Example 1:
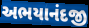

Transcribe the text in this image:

અભયાનંદજી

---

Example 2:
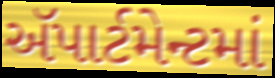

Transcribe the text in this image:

ઍપાર્ટમેન્ટમાં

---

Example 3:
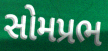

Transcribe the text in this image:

સોમપ્રભ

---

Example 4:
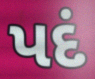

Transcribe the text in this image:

પદં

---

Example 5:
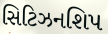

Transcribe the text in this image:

સિટિઝનશિપ